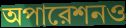
অপারেশনও